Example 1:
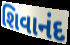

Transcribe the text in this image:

શિવાનંદ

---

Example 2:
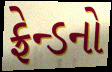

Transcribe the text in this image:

ફ્રેન્ડનો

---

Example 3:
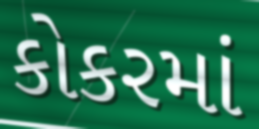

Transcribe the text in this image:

કોકરમાં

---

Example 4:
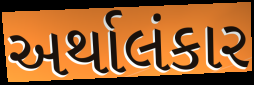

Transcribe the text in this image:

અર્થાલંકાર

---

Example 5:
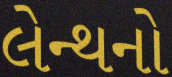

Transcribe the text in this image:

લેન્થનો